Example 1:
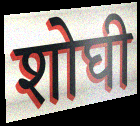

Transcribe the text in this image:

शोघी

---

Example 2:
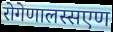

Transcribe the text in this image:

रोगेणालस्सएण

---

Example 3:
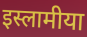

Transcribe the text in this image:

इस्लामीया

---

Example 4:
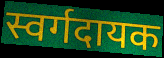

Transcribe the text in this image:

स्वर्गदायक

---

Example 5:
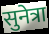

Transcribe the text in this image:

सुनेत्रा